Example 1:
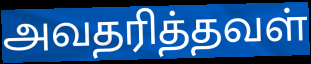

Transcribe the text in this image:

அவதரித்தவள்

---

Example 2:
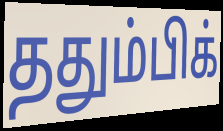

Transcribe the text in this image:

ததும்பிக்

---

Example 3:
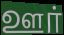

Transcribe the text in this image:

ஊர்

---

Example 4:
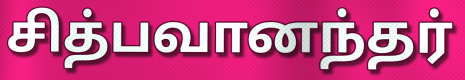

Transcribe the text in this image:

சித்பவானந்தர்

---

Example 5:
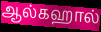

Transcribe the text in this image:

ஆல்கஹால்